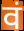
वं